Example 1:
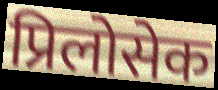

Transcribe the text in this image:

प्रिलोसेक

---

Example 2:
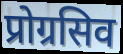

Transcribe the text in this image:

प्रोग्रसिव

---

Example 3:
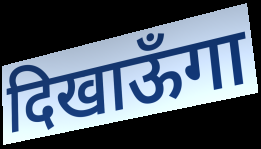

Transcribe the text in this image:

दिखाऊँगा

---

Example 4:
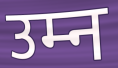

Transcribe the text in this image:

उम्न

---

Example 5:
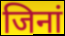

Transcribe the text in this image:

जिनां